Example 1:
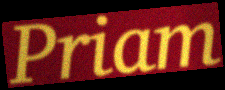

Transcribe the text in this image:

Priam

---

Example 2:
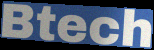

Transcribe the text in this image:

Btech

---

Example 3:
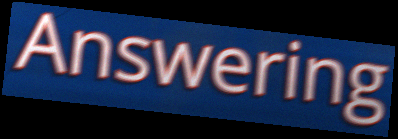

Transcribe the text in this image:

Answering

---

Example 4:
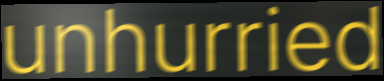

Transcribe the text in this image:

unhurried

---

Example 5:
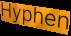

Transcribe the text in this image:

Hyphen